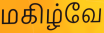
மகிழ்வே